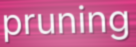
pruning